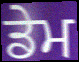
ਡੇਮ